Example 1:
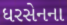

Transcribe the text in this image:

ધરસેનના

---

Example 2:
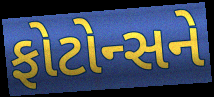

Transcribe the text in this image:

ફોટોન્સને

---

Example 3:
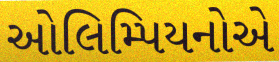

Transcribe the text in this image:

ઓલિમ્પિયનોએ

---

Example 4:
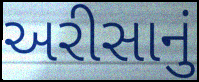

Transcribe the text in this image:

અરીસાનું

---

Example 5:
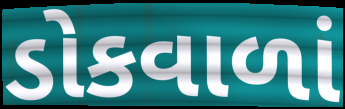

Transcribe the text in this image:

ડોકવાળાં